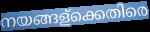
നയങ്ങള്ക്കെതിരെ